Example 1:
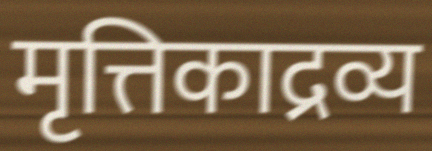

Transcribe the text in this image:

मृत्तिकाद्रव्य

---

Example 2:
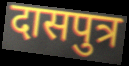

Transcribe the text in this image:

दासपुत्र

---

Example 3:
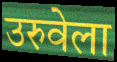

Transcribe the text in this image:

उरुवेला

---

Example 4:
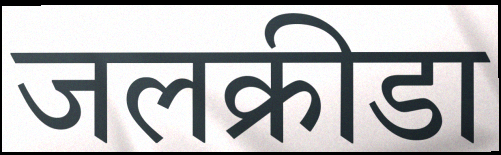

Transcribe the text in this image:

जलक्रीडा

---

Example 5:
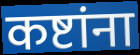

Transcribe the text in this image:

कष्टांना